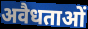
अवैधताओं